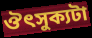
ঔৎসুক্যটা